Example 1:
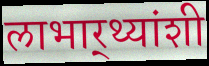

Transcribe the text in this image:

लाभार्थ्यांशी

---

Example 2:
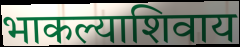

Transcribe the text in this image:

भाकल्याशिवाय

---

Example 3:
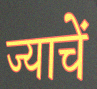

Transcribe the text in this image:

ज्याचें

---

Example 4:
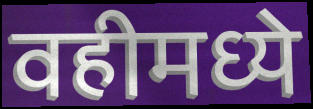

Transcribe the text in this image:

वहीमध्ये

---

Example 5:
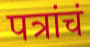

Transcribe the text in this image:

पत्रांचं